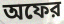
অফের